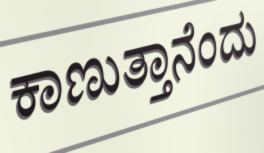
ಕಾಣುತ್ತಾನೆಂದು